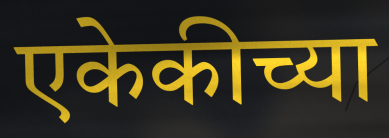
एकेकीच्या